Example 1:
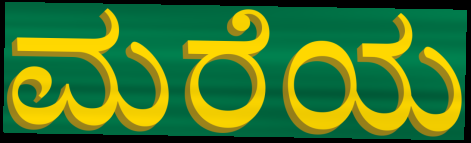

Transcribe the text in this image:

ಮರೆಯ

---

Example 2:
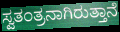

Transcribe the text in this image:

ಸ್ವತಂತ್ರನಾಗಿರುತ್ತಾನೆ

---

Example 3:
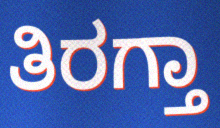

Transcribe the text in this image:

ತಿರಗ್ತಾ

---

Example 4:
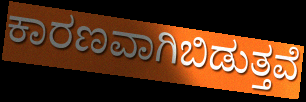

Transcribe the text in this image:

ಕಾರಣವಾಗಿಬಿಡುತ್ತವೆ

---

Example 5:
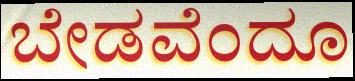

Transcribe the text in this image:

ಬೇಡವೆಂದೂ